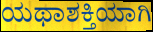
ಯಥಾಶಕ್ತಿಯಾಗಿ